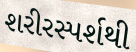
શરીરસ્પર્શથી